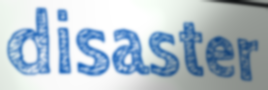
disaster